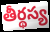
తీర్థస్య